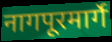
नागपूरमार्गे